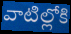
వాటిల్లోకి